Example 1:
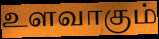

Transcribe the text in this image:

உளவாகும்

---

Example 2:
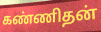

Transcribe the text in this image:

கண்ணிதன்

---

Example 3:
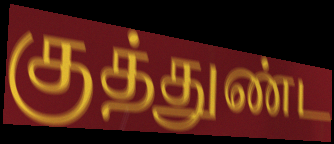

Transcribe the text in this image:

குத்துண்ட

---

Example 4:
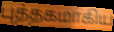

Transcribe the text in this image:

புத்தகமாகிய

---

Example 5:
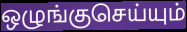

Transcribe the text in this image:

ஒழுங்குசெய்யும்